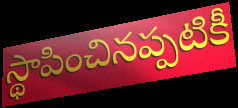
స్థాపించినప్పటికీ